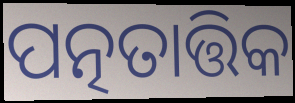
ପତ୍ନତାତ୍ତିକ